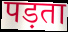
पड़ता